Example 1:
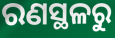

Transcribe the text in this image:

ରଣସ୍ଥଳରୁ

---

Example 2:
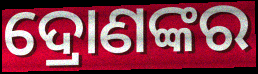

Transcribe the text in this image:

ଦ୍ରୋଣଙ୍କର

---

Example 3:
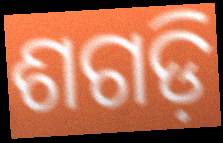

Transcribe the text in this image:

ଶଗଡ଼ି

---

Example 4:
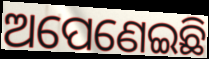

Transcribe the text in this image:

ଅପେଣେଇଛି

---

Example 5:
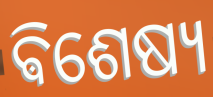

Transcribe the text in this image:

ଵିଶେଷ୍ୟ